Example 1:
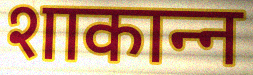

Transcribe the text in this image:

शाकान्न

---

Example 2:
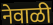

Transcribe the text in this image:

नेवाळी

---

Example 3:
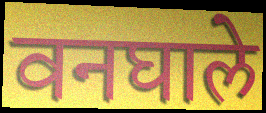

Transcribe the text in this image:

वनघाले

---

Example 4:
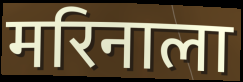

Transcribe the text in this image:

मरिनाला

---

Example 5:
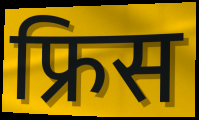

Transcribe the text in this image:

फ्रिस